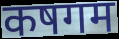
कषगम